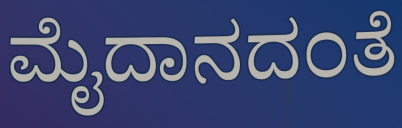
ಮೈದಾನದಂತೆ